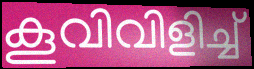
കൂവിവിളിച്ച്